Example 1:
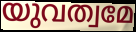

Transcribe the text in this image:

യുവത്വമേ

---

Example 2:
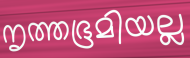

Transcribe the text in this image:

നൃത്തഭൂമിയല്ല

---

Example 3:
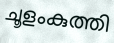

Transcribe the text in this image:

ചൂളംകുത്തി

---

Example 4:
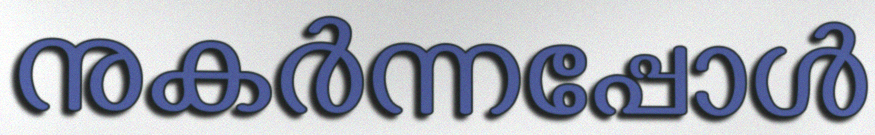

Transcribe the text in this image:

നുകർന്നപ്പോൾ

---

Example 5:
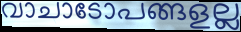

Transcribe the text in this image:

വാചാടോപങ്ങളല്ല